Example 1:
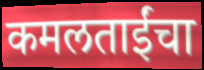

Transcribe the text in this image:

कमलताईंचा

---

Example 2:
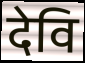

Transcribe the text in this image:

देवि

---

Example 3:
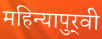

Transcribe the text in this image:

महिन्यापुर्वी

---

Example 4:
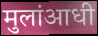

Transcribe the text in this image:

मुलांआधी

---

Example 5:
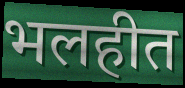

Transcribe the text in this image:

भलहीत